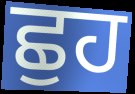
ਛੁਹ